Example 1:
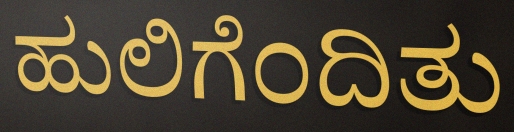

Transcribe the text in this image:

ಹುಲಿಗೆಂದಿತು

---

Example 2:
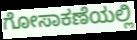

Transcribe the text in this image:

ಗೋಸಾಕಣೆಯಲ್ಲಿ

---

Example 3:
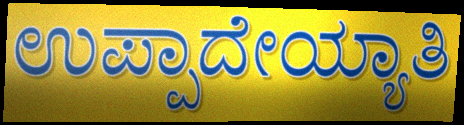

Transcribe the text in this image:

ಉಪ್ಪಾದೇಯ್ಯಾತಿ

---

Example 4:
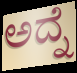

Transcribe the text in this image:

ಅದ್ನೆ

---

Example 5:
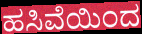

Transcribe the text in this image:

ಹಸಿವೆಯಿಂದ